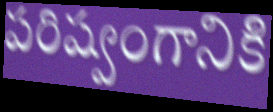
పరిష్వంగానికి